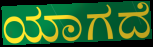
ಯಾಗದೆ